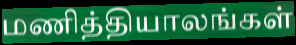
மணித்தியாலங்கள்